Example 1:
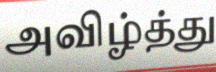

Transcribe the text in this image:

அவிழ்த்து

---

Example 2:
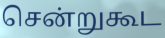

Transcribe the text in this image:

சென்றுகூட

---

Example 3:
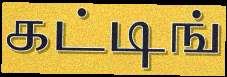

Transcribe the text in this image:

கட்டிங்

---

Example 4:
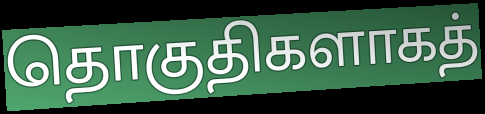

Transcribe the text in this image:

தொகுதிகளாகத்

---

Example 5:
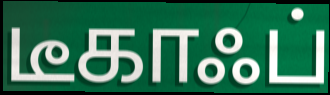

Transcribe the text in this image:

டீகாஃப்